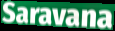
Saravana